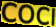
COCI